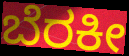
ಬೆರಕೀ